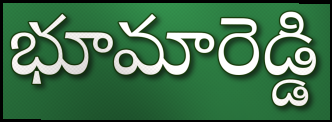
భూమారెడ్డి